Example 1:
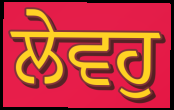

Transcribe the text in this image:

ਲੇਵਹੁ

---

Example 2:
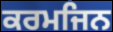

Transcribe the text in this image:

ਕਰਮਜਿਨ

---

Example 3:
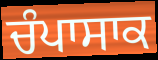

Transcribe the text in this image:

ਚੰਪਾਸਾਕ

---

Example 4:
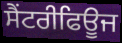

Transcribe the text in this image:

ਸੈਂਟਰੀਫਿਊਜ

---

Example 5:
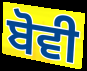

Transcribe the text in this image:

ਬੋਵੀ